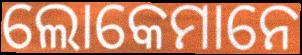
ଲୋକେମାନେ